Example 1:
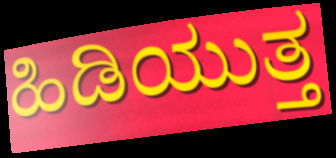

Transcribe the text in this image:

ಹಿಡಿಯುತ್ತ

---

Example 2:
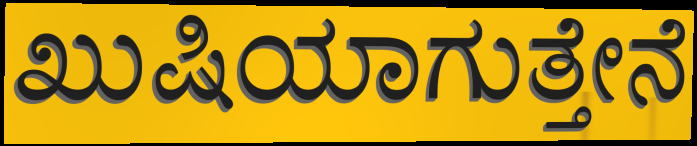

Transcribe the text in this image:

ಖುಷಿಯಾಗುತ್ತೇನೆ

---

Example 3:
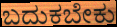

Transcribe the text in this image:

ಬದುಕಬೇಕು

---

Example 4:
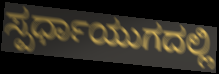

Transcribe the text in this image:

ಸ್ಪರ್ಧಾಯುಗದಲ್ಲಿ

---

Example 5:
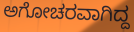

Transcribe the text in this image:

ಅಗೋಚರವಾಗಿದ್ದ